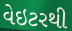
વેઇટરથી